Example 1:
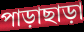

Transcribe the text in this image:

পাড়াছাড়া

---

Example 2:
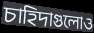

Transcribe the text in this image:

চাহিদাগুলোও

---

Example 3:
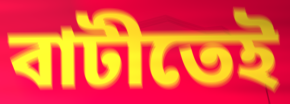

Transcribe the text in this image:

বাটীতেই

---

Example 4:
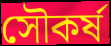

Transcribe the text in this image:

সৌকর্ষ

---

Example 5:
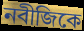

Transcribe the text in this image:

নবীজিকে